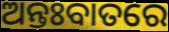
ଅନ୍ତଃବାତରେ